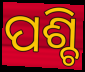
ପଶ୍ଚି